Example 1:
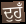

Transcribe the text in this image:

ਦੁਹੁਁ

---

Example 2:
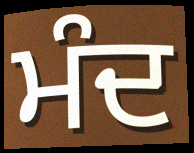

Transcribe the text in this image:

ਮੰਦ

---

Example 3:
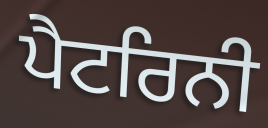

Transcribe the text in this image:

ਪੈਟਰਿਨੀ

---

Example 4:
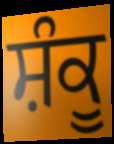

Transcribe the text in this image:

ਸ਼ੰਕੂ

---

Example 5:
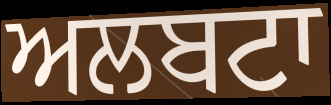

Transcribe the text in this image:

ਅਲਬਟਾ